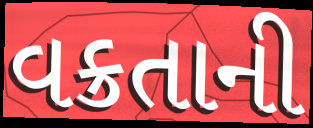
વક્રતાની